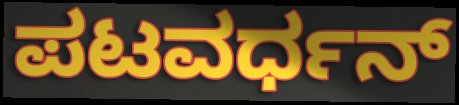
ಪಟವರ್ಧನ್